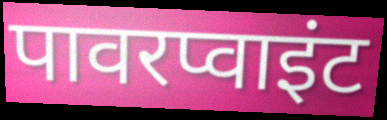
पावरप्वाइंट